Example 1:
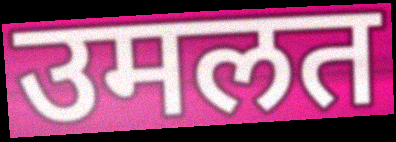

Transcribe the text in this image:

उमलत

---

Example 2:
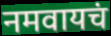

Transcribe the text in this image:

नमवायचं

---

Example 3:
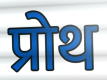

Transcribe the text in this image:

प्रोथ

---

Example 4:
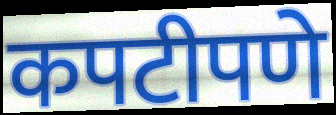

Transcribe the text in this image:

कपटीपणे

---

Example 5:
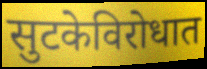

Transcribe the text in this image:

सुटकेविरोधात